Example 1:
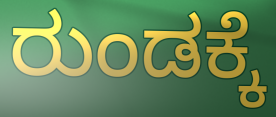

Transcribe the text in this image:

ರುಂಡಕ್ಕೆ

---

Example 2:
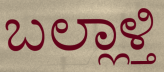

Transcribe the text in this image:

ಬಲ್ಲಾಳ್ತಿ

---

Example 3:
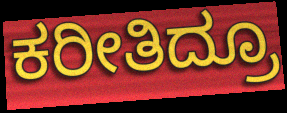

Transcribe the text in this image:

ಕರೀತಿದ್ರೂ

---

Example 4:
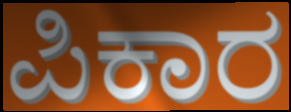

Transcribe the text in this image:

ಪಿಕಾರ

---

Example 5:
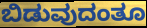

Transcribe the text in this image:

ಬಿಡುವುದಂತೂ